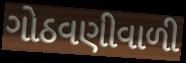
ગોઠવણીવાળી